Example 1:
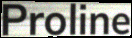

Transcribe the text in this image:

Proline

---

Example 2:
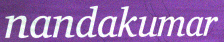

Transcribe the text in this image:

nandakumar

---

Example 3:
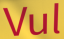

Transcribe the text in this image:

Vul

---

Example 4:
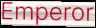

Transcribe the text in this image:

Emperor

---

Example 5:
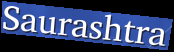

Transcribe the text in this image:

Saurashtra